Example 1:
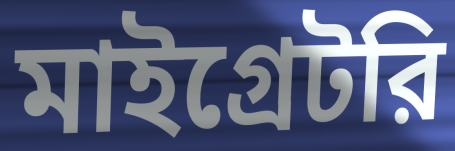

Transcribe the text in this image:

মাইগ্রেটরি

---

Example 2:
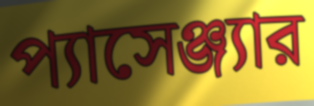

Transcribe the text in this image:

প্যাসেঞ্জ্যার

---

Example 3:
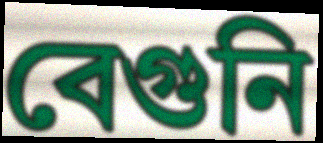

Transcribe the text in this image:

বেগুনি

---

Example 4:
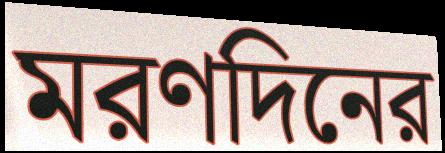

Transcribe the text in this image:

মরণদিনের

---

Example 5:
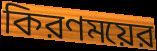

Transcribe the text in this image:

কিরণময়ের